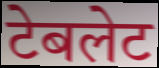
टेबलेट